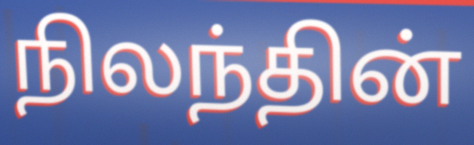
நிலந்தின்